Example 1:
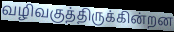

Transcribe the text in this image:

வழிவகுத்திருக்கின்றன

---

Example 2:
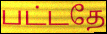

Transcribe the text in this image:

பட்டதே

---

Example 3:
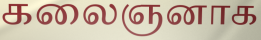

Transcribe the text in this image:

கலைஞனாக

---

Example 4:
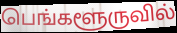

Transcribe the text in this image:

பெங்களூருவில்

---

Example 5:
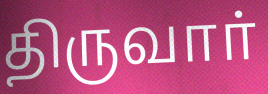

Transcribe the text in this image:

திருவார்